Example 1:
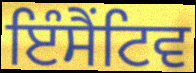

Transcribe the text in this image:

ਇੰਸੈਂਟਿਵ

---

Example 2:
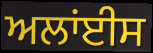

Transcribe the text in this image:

ਅਲਾਂਈਸ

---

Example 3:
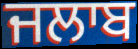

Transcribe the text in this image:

ਜਲਾਬ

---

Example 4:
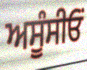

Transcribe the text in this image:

ਅਸੂੰਸੀਓਂ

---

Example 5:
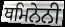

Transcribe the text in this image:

ਥਮਿਨੇਨੀ